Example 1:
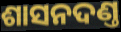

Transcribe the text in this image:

ଶାସନଦଣ୍ତ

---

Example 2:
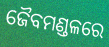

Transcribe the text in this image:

ଜୈବମଣ୍ଡଳରେ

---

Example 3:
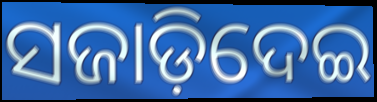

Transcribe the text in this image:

ସଜାଡ଼ିଦେଇ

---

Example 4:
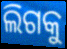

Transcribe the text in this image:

ଲିଗକୁ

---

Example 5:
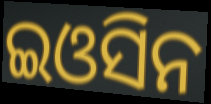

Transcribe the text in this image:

ଇଓସିନ